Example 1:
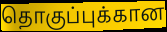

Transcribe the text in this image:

தொகுப்புக்கான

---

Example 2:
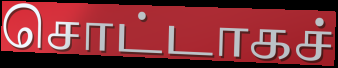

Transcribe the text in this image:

சொட்டாகச்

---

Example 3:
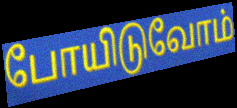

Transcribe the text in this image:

போயிடுவோம்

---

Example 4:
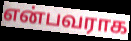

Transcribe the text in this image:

என்பவராக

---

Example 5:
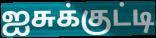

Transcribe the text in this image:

ஐசுக்குட்டி